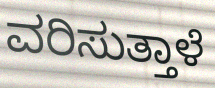
ವರಿಸುತ್ತಾಳೆ